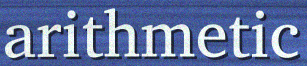
arithmetic